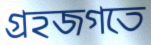
গ্রহজগতে